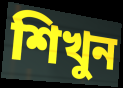
শিখুন